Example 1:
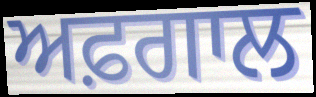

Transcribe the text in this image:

ਅਫ਼ਗਾਲ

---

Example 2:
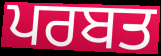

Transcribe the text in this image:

ਪਰਬਤ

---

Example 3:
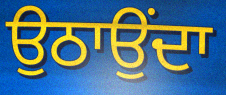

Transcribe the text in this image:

ਉਠਾਉਂਦਾ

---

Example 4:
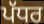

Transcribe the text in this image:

ਪੱਧਰ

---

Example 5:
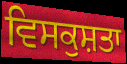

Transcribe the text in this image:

ਵਿਸਕੁਸ਼ਤਾ